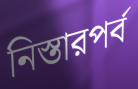
নিস্তারপর্ব